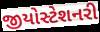
જીયોસ્ટેશનરી